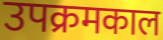
उपक्रमकाल